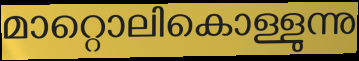
മാറ്റൊലികൊള്ളുന്നു